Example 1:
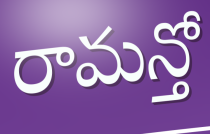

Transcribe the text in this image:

రామన్తో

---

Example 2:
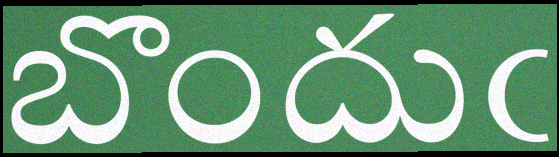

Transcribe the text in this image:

బొందుఁ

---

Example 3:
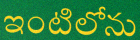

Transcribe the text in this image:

ఇంటిలోను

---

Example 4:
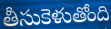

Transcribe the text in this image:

తీసుకెళుతోంది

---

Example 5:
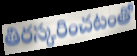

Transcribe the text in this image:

తిరస్కరించటంతో